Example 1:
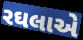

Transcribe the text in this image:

રઘલાએ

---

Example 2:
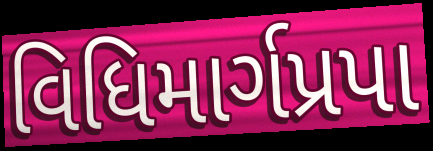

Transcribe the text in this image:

વિધિમાર્ગપ્રપા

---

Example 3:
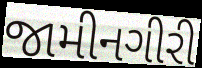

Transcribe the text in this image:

જામીનગીરી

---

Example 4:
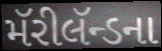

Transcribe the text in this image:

મૅરીલૅન્ડના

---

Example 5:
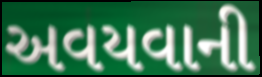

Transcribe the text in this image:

અવયવાની